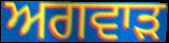
ਅਗਵਾੜ